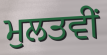
ਮੁਲਤਵੀਂ